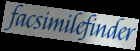
facsimilefinder